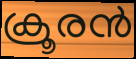
ക്രൂരൻ